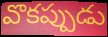
వొకప్పుడు